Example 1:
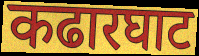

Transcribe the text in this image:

कढारघाट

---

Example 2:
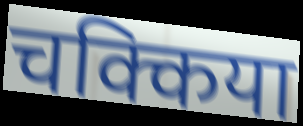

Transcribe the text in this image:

चक्किया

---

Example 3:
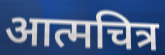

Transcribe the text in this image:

आत्मचित्र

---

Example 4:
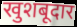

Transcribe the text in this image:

खुशबूदार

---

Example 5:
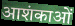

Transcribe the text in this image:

आशंकाओं